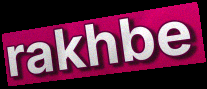
rakhbe